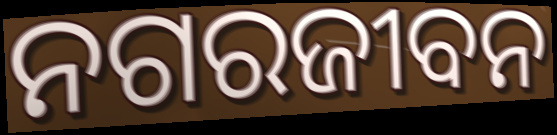
ନଗରଜୀବନ